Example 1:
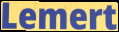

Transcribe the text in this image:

Lemert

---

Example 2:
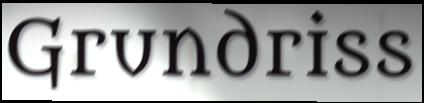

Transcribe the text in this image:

Grundriss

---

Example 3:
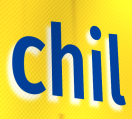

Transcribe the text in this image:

chil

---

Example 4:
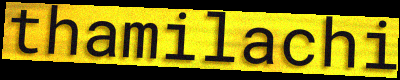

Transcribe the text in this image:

thamilachi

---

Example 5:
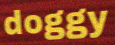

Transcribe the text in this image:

doggy